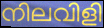
നിലവിളി